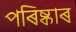
পৰিষ্কাৰ